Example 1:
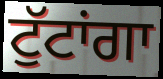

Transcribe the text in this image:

ਟੁੱਟਾਂਗਾ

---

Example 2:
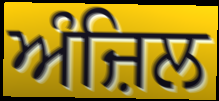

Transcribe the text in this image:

ਅੰਜ਼ਿਲ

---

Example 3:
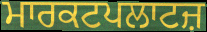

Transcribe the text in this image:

ਮਾਰਕਟਪਲਾਟਜ਼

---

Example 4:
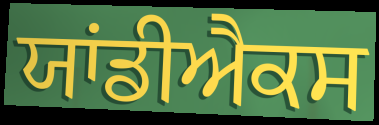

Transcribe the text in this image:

ਯਾਂਡੀਐਕਸ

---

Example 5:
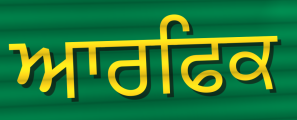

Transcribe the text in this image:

ਆਰਫਿਕ